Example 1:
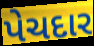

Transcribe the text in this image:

પેચદાર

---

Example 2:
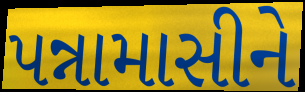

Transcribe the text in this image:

પન્નામાસીને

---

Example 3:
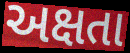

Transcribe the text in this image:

અક્ષતા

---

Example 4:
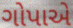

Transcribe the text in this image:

ગોપાએ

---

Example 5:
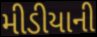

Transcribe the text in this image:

મીડીયાની